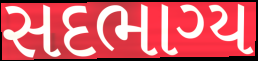
સદભાગ્ય